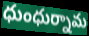
ధుంధుర్నామ